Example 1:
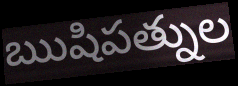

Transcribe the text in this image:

ఋషిపత్నుల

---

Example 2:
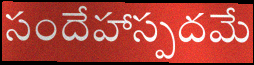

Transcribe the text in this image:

సందేహాస్పదమే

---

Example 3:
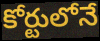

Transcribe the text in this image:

కోర్టులోనే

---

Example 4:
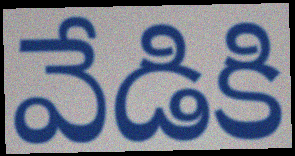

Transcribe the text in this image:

వేడికి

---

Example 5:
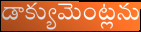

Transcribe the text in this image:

డాక్యుమెంట్లను